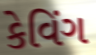
કેવિંગ